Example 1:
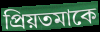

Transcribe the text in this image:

প্রিয়তমাকে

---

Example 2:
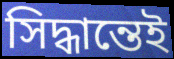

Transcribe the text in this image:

সিদ্ধান্তেই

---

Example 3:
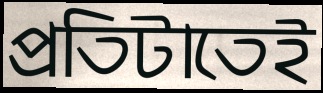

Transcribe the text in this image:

প্রতিটাতেই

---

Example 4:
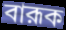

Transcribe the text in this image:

বারূক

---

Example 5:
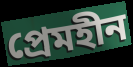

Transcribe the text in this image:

প্রেমহীন